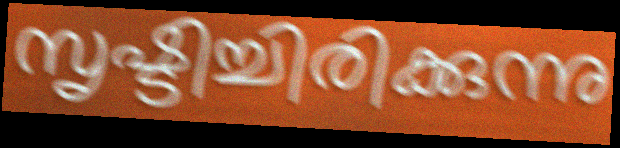
സൃഷ്ടിച്ചിരിക്കുന്നു